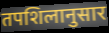
तपशिलानुसार